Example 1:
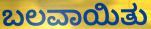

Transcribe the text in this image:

ಬಲವಾಯಿತು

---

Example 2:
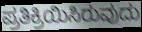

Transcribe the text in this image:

ಪ್ರತಿಕ್ರಿಯಿಸಿರುವುದು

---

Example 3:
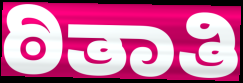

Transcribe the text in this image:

ಠಿತಾತಿ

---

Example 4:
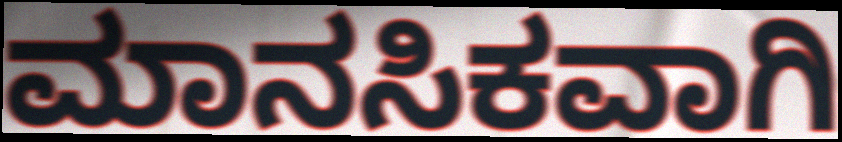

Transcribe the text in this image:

ಮಾನಸಿಕವಾಗಿ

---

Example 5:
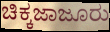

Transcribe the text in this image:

ಚಿಕ್ಕಜಾಜೂರು